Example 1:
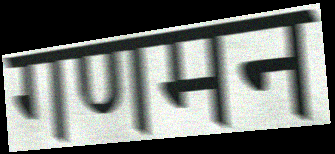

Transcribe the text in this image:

गणमन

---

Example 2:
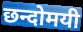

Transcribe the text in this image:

छन्दोमयी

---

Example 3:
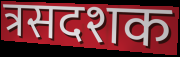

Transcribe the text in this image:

त्रसदशक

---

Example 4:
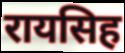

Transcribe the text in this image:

रायसिह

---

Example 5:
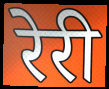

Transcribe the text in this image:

रेरी